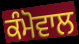
ਕੰਮੋਵਾਲ